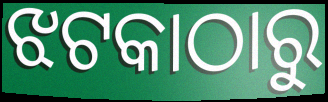
ଝଟକାଠାରୁ